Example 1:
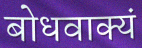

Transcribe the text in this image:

बोधवाक्यं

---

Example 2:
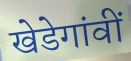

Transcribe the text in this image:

खेडेगांवीं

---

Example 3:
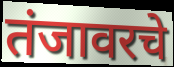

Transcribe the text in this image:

तंजावरचे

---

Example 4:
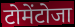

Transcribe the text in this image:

टोमेंटोजा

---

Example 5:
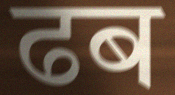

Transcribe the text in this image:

ढब